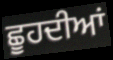
ਛੂਹਦੀਆਂ